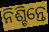
ନିଶ୍ଚିନ୍ତେ